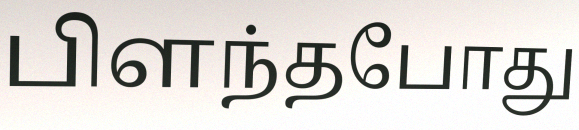
பிளந்தபோது